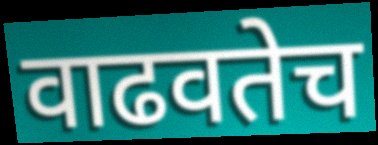
वाढवतेच